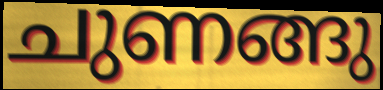
ചുണങ്ങു